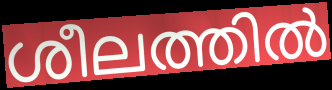
ശീലത്തിൽ